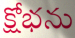
క్షోభను